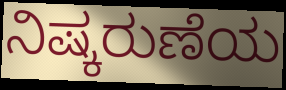
ನಿಷ್ಕರುಣೆಯ